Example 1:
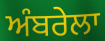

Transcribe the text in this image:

ਅੰਬਰੇਲਾ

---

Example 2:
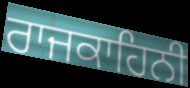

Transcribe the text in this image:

ਰਾਜਕਾਹਿਨੀ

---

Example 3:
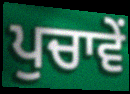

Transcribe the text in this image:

ਪੁਚਾਵੇਂ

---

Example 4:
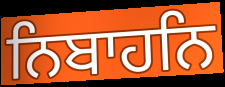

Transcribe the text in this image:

ਨਿਬਾਹਨਿ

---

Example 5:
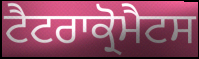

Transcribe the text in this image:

ਟੈਟਰਾਕ੍ਰੋਮੈਟਸ